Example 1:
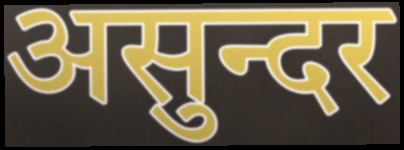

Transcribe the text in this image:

असुन्दर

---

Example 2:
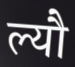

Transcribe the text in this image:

ल्यौ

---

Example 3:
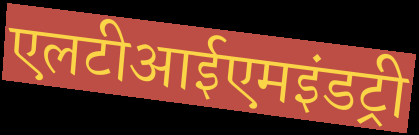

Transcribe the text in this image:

एलटीआईएमइंडट्री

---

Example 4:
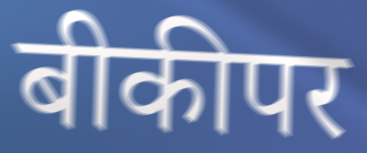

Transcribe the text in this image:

बीकीपर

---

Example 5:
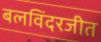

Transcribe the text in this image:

बलविंदरजीत